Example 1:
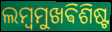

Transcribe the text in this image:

ଲମ୍ବମୁଖଵିଶିଷ୍ଟ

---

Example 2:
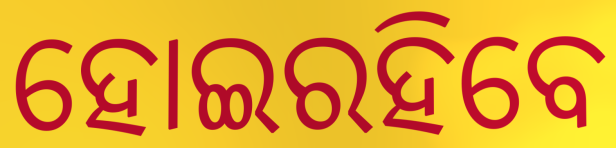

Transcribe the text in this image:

ହୋଇରହିବେ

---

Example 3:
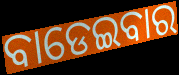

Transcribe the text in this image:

ବାଡେଇବାର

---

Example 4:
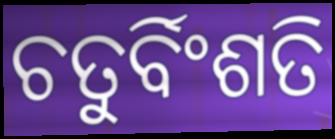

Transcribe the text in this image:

ଚତୁର୍ବିଂଶତି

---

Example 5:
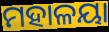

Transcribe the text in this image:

ମହାଳୟା